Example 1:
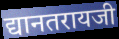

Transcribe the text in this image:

द्यानतरायजी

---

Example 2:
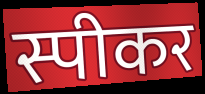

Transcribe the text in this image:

स्‍पीकर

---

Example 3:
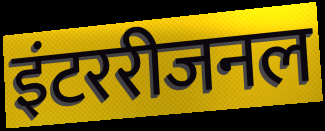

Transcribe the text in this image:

इंटररीजनल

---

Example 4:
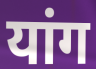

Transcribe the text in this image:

यांग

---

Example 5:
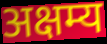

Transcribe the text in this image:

अक्षम्‍य